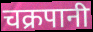
चक्रपानी